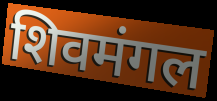
शिवमंगल